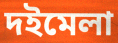
দইমেলা